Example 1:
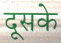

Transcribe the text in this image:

दूसके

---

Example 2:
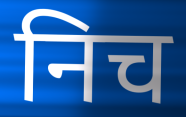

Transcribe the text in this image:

निच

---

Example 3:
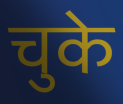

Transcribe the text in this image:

चुके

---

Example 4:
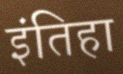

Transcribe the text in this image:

इंतिहा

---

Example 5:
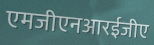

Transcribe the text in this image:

एमजीएनआरईजीए